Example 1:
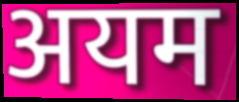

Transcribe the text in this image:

अयम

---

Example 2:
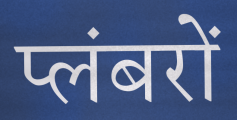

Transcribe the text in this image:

प्लंबरों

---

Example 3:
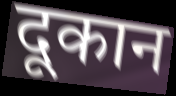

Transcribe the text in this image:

दूकान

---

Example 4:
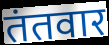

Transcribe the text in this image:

तंतवार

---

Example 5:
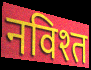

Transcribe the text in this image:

नविश्त